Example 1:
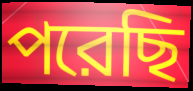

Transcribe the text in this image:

পরেছি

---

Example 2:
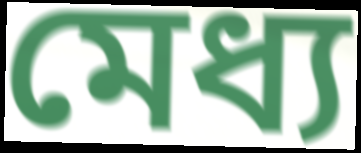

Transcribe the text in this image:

মেধ্য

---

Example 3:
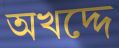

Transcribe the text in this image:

অখদ্দে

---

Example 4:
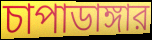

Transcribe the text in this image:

চাপাডাঙ্গার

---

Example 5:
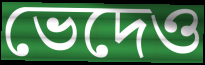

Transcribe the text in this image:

ভেদেও